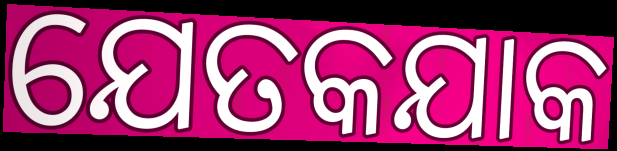
ଯେତକଯାକ